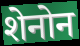
शेनोन